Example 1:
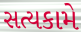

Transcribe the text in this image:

સત્યકામે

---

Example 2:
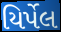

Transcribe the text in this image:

યિર્પેલ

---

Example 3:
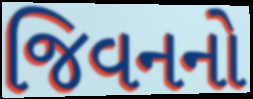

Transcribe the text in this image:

જિવનનો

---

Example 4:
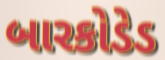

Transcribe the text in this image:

બારકોડેડ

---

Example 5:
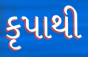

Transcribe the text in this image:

કૃપાથી